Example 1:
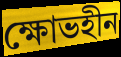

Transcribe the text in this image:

ক্ষোভহীন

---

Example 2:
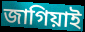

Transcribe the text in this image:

জাগিয়াই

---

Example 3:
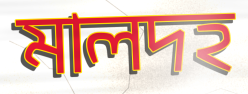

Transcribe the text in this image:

মালদহ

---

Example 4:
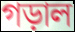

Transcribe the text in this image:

গড়াল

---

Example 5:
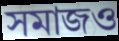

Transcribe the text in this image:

সমাজও